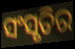
ସଂସୃତିର